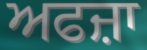
ਅਫਜ਼ਾ